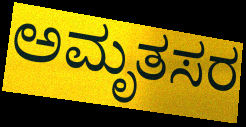
ಅಮೃತಸರ